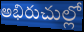
అభిరుచుల్లో